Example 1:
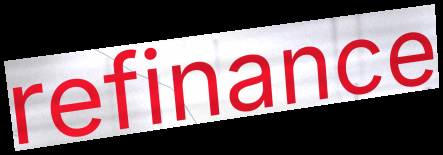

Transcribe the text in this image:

refinance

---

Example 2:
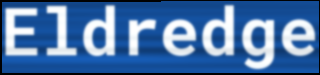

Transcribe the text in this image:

Eldredge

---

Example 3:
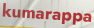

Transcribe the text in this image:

kumarappa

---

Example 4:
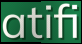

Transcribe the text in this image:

atifi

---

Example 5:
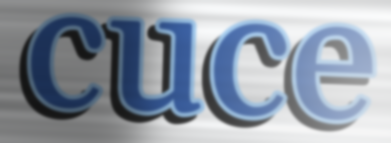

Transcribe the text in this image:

cuce